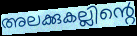
അലക്കുകല്ലിന്റെ